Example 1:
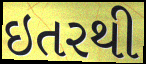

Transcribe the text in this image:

ઇતરથી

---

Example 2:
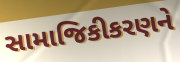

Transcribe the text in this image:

સામાજિકીકરણને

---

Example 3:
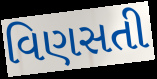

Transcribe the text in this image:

વિણસતી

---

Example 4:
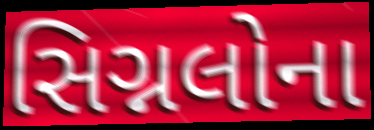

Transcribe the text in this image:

સિગ્નલોના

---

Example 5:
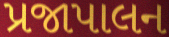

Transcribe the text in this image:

પ્રજાપાલન